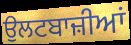
ਉਲਟਬਾਜ਼ੀਆਂ